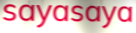
sayasaya